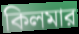
কিলমার